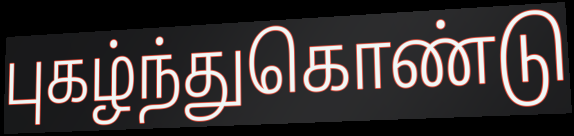
புகழ்ந்துகொண்டு